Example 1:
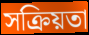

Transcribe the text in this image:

সক্রিয়তা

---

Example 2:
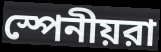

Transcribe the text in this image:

স্পেনীয়রা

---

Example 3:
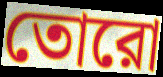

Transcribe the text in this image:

তোরো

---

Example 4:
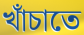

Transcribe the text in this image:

খাঁচাতে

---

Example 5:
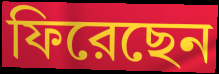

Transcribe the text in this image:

ফিরেছেন